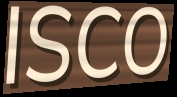
ISCO